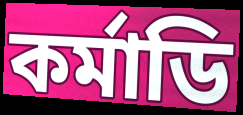
কর্মাডি